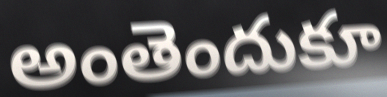
అంతెందుకూ